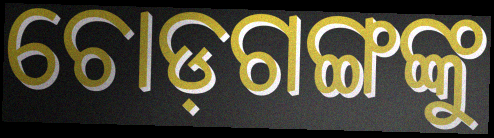
ଚୋଡ଼ଗଙ୍ଗଙ୍କୁ